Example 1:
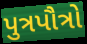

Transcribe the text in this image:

પુત્રપૌત્રો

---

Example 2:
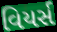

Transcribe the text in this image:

વિયર્સ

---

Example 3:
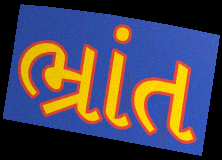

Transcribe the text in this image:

ભ્રાંત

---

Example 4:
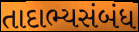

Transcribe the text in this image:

તાદાભ્યસંબંધ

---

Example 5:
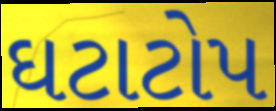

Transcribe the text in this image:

ઘટાટોપ